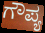
ಗೌಪ್ಯ